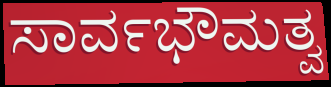
ಸಾರ್ವಭೌಮತ್ವ